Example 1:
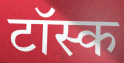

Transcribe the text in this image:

टॉस्‍क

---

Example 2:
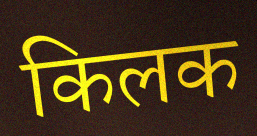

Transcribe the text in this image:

किलक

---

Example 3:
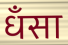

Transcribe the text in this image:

धँसा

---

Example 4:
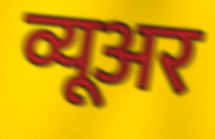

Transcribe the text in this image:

व्यूअर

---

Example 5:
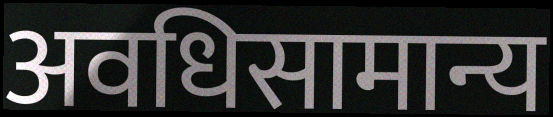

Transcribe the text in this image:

अवधिसामान्य